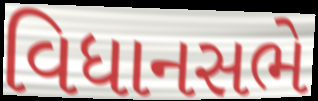
વિધાનસભે